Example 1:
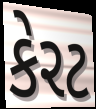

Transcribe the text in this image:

કેરટ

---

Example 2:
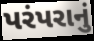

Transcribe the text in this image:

પરંપરાનું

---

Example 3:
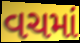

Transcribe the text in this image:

વચમાં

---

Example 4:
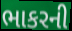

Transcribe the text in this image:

ભાકરની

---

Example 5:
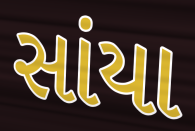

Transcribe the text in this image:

સાંયા